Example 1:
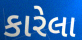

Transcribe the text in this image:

કારેલા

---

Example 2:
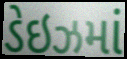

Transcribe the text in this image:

ડેઇઝમાં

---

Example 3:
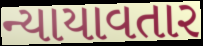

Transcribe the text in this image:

ન્યાયાવતાર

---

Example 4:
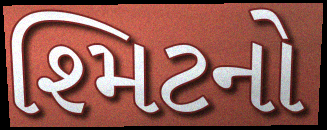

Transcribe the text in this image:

શ્મિટનો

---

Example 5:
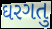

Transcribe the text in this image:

ઘરગતુ